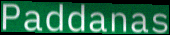
Paddanas